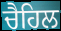
ਚੈਹਿਲ